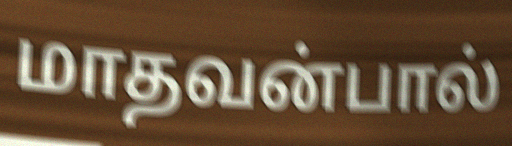
மாதவன்பால்